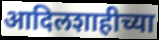
आदिलशाहीच्या